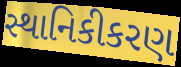
સ્થાનિકીકરણ